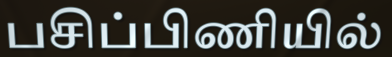
பசிப்பிணியில்